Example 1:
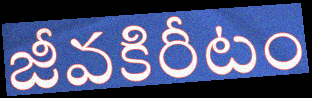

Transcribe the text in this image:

జీవకిరీటం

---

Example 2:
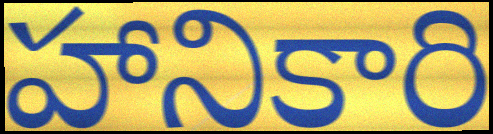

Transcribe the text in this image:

హానికారి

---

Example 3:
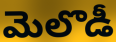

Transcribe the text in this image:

మెలొడీ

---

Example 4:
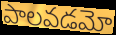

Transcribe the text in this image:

పాలవడమో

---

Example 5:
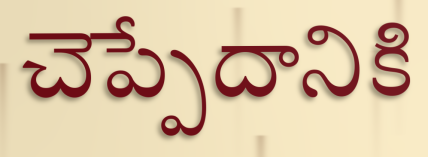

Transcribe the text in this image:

చెప్పేదానికి